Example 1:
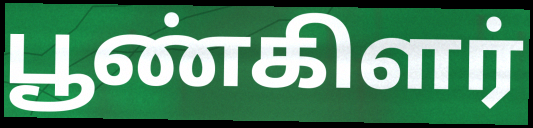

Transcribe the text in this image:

பூண்கிளர்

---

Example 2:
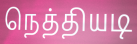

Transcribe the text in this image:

நெத்தியடி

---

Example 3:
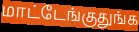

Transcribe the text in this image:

மாட்டேங்குதுங்க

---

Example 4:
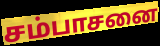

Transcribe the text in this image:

சம்பாசனை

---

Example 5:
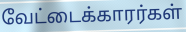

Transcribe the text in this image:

வேட்டைக்காரர்கள்